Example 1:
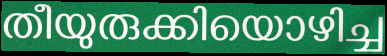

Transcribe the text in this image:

തീയുരുക്കിയൊഴിച്ച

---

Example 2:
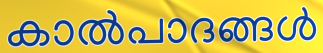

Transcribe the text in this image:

കാൽപാദങ്ങൾ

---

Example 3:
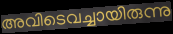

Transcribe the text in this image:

അവിടെവച്ചായിരുന്നു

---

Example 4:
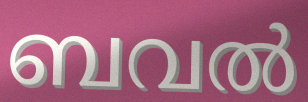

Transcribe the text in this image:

ബവൽ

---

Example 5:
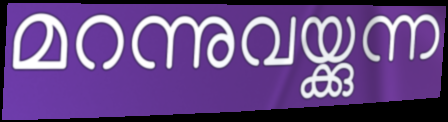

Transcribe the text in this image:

മറന്നുവയ്ക്കുന്ന